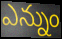
ఎన్నుం